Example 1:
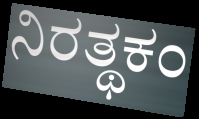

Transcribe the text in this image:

ನಿರತ್ಥಕಂ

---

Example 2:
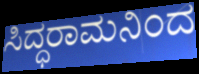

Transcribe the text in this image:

ಸಿದ್ಧರಾಮನಿಂದ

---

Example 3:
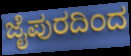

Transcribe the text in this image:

ಜೈಪುರದಿಂದ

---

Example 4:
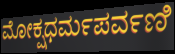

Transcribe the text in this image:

ಮೋಕ್ಷಧರ್ಮಪರ್ವಣಿ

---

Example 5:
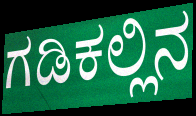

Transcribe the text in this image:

ಗಡಿಕಲ್ಲಿನ